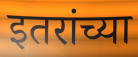
इतरांच्या